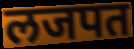
लजपत